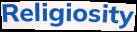
Religiosity